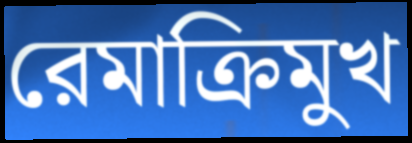
রেমাক্রিমুখ